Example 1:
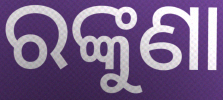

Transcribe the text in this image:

ରଙ୍କୁଣା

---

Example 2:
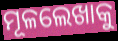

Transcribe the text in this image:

ମୂଳଲେଖାକୁ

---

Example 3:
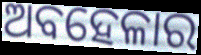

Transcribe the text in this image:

ଅବହେଳାର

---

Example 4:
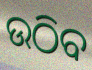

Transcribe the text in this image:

ଉଠିବ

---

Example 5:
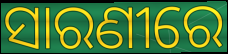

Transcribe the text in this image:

ସାରଣୀରେ